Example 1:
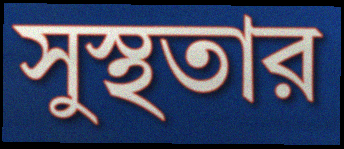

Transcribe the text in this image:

সুস্থতার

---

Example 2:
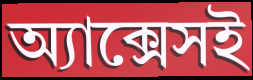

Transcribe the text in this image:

অ্যাক্সেসই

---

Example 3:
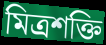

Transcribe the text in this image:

মিত্রশক্তি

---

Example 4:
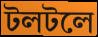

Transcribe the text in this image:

টলটলে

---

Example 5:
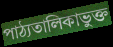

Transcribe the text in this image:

পাঠ্যতালিকাভুক্ত